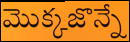
మొక్కజొన్నే